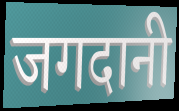
जगदानी